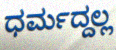
ಧರ್ಮದ್ದಲ್ಲ